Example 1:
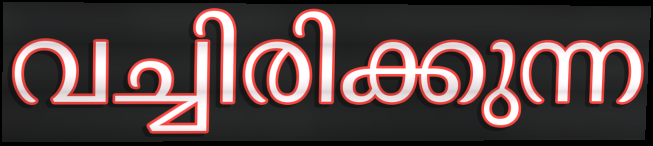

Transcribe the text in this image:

വച്ചിരിക്കുന്ന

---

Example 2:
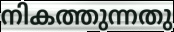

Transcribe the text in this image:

നികത്തുന്നതു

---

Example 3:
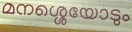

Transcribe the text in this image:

മനശ്ശെയോടും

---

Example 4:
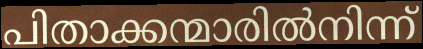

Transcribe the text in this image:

പിതാക്കന്മാരിൽനിന്ന്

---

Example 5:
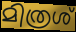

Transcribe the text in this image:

മിത്രശ്